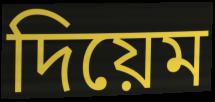
দিয়েম